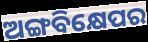
ଅଙ୍ଗବିକ୍ଷେପର